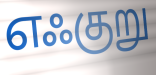
எஃகுறு